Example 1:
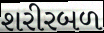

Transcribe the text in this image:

શરીરબળ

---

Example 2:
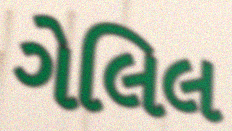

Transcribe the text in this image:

ગેલિલ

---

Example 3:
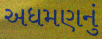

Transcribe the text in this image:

અધમણનું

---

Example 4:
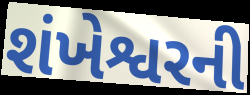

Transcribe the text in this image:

શંખેશ્વરની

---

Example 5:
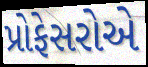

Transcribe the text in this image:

પ્રોફેસરોએ